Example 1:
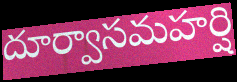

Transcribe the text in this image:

దూర్వాసమహర్షి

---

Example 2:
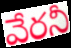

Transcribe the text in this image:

వేరనీ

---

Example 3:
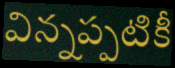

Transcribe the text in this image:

విన్నప్పటికీ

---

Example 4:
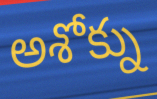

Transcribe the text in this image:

అశోక్ను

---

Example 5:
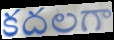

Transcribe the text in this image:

కదలగా